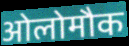
ओलोमौक